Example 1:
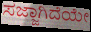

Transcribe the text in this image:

ಸಜ್ಜಾಗಿದೆಯೇ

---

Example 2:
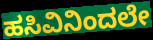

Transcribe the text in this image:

ಹಸಿವಿನಿಂದಲೇ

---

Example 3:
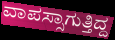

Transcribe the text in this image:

ವಾಪಸ್ಸಾಗುತ್ತಿದ್ದ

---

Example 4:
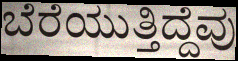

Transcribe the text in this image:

ಬೆರೆಯುತ್ತಿದ್ದೆವು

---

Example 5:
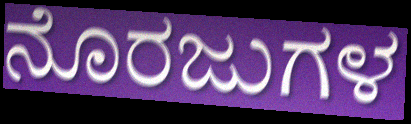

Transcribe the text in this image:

ನೊರಜುಗಳ